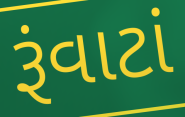
રૂંવાટાં